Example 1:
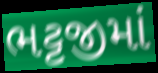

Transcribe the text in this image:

ભટ્ટજીમાં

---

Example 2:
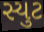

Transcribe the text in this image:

સ્યુટ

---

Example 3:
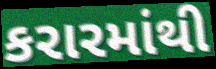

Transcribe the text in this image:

કરારમાંથી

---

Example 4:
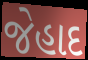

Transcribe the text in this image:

જેહાદ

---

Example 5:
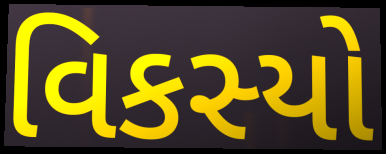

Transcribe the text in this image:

વિકસ્યો